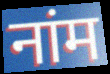
नांम